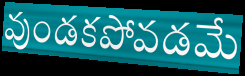
వుండకపోవడమే